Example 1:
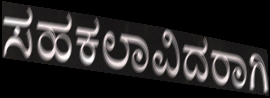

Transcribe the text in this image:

ಸಹಕಲಾವಿದರಾಗಿ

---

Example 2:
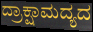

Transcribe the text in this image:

ದ್ರಾಕ್ಷಾಮದ್ಯದ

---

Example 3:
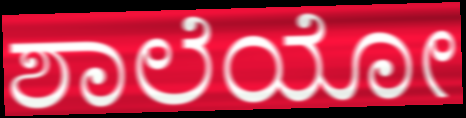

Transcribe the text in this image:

ಶಾಲೆಯೋ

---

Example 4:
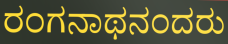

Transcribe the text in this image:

ರಂಗನಾಥನಂದರು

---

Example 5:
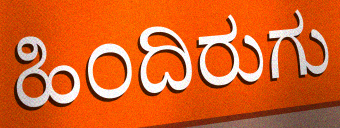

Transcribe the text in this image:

ಹಿಂದಿರುಗು